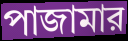
পাজামার